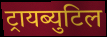
ट्रायब्युटिल